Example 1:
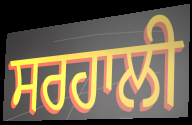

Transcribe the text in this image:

ਸਰਹਾਲੀ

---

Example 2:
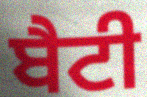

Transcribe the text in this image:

ਬੈਟੀ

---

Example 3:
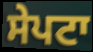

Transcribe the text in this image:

ਸੇਪਟਾ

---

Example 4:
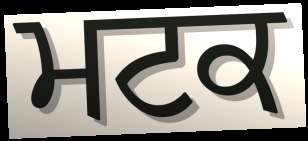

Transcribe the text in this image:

ਮਟਕ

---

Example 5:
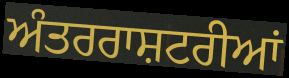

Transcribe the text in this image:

ਅੰਤਰਰਾਸ਼ਟਰੀਆਂ